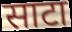
साटा